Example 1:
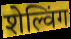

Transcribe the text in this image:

शेल्विंग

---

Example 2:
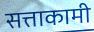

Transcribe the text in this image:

सत्ताकामी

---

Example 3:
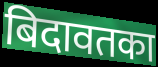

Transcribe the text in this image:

बिदावतका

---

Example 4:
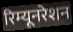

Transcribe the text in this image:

रिम्यूनरेशन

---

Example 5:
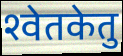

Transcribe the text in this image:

श्वेतकेतु